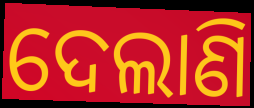
ଦେଲାଣି